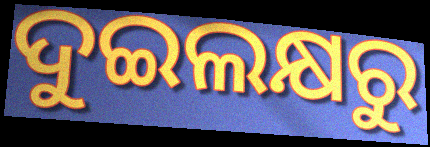
ଦୁଇଲକ୍ଷରୁ